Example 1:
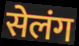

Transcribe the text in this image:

सेलंग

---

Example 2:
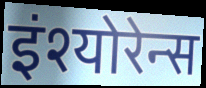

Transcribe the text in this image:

इंश्योरेन्स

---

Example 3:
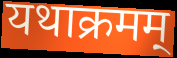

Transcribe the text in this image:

यथाक्रमम्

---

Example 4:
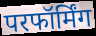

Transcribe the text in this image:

परफॉर्मिंग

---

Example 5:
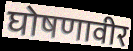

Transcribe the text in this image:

घोषणावीर